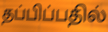
தப்பிப்பதில்